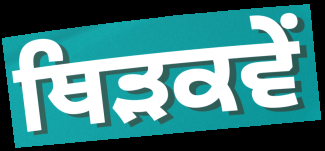
ਥਿੜਕਵੇਂ